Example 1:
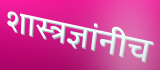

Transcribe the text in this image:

शास्त्रज्ञांनीच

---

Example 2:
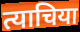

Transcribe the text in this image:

त्याचिया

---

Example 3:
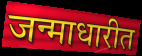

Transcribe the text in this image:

जन्माधारीत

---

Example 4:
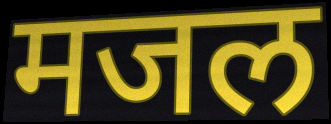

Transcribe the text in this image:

मजल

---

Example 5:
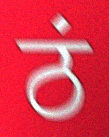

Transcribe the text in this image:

ठं